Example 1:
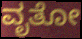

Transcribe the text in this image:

ವೃತೋ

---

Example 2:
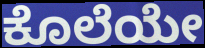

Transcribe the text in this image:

ಕೊಲೆಯೇ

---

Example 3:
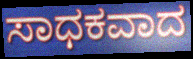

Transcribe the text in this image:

ಸಾಧಕವಾದ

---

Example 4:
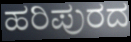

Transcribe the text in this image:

ಹರಿಪುರದ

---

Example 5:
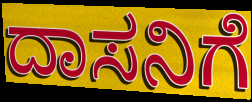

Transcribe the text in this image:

ದಾಸನಿಗೆ